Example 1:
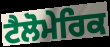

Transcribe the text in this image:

ਟੈਲੋਮੇਰਿਕ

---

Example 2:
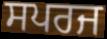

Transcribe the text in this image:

ਸਪਰਜ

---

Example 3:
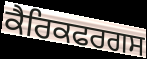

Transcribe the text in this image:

ਕੈਰਿਕਫਰਗਸ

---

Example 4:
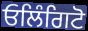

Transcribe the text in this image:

ਓਲਿੰਗਿਟੋ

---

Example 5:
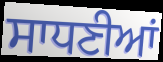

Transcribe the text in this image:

ਸਾਧਣੀਆਂ